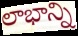
లాభాన్ని